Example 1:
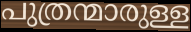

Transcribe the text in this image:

പുത്രന്മാരുള്ള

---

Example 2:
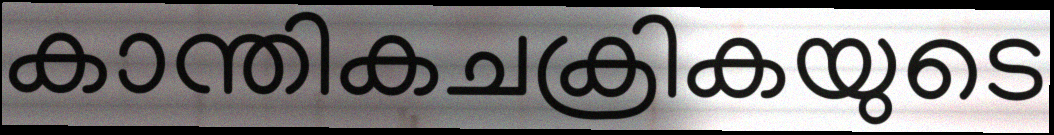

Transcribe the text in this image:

കാന്തികചക്രികയുടെ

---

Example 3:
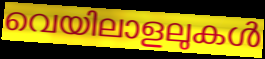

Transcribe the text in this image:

വെയിലാളലുകൾ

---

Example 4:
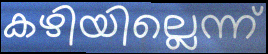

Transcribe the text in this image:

കഴിയില്ലെന്ന്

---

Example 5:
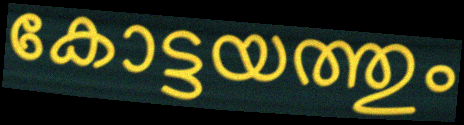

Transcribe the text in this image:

കോട്ടയത്തും